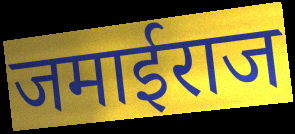
जमाईराज